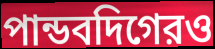
পান্ডবদিগেরও